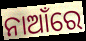
ନାଆଁରେ